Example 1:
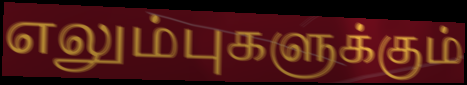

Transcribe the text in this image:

எலும்புகளுக்கும்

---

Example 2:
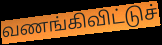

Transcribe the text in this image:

வணங்கிவிட்டுச்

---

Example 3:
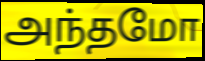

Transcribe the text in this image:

அந்தமோ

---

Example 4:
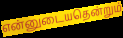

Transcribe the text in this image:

என்னுடையதென்றும்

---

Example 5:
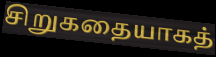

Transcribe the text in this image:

சிறுகதையாகத்